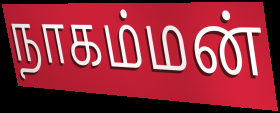
நாகம்மன்